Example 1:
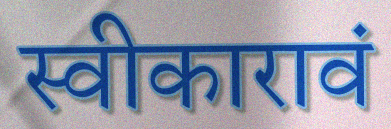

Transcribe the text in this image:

स्वीकारावं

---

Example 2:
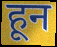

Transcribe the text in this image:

हून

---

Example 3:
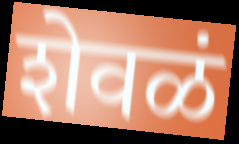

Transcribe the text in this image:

शेवळं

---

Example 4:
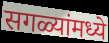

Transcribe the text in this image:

सगळ्यांमध्ये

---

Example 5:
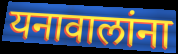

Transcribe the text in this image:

यनावालांना